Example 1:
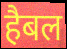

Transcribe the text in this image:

हैबल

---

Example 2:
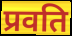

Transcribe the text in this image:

प्रवति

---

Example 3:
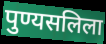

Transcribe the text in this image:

पुण्यसलिला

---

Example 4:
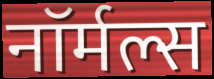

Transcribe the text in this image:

नॉर्मल्स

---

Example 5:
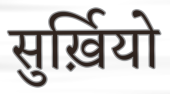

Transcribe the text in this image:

सुर्ख़ियो